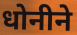
धोनीने